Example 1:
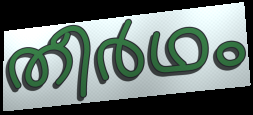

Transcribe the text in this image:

തീർഥം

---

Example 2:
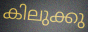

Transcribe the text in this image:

കിലുക്കു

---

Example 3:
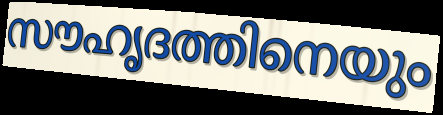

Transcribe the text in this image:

സൗഹൃദത്തിനെയും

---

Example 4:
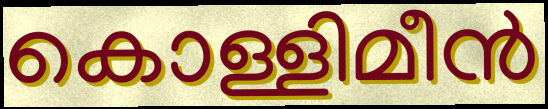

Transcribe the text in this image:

കൊള്ളിമീൻ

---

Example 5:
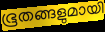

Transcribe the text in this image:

ഭൂതങ്ങളുമായി